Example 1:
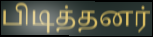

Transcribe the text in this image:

பிடித்தனர்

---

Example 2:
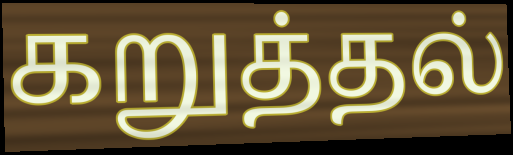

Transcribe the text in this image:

கறுத்தல்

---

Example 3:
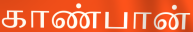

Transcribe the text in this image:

காண்பான்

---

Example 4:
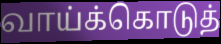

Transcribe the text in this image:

வாய்க்கொடுத்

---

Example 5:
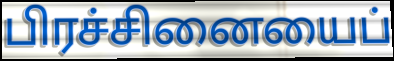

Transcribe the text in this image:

பிரச்சினையைப்